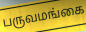
பருவமங்கை